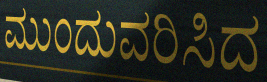
ಮುಂದುವರಿಸಿದ